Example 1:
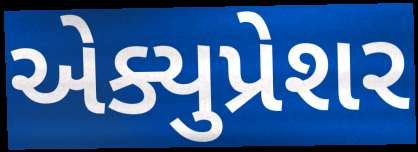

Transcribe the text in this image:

એક્યુપ્રેશર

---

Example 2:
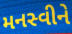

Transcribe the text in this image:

મનસ્વીને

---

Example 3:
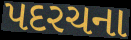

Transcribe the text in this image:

પદરચના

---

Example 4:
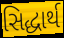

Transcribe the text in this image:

સિદ્ધાર્થ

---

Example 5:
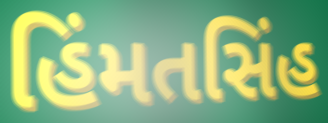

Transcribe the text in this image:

હિંમતસિંહ